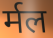
र्मल